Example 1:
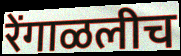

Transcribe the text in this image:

रेंगाळलीच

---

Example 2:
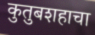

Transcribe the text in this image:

कुतुबशहाचा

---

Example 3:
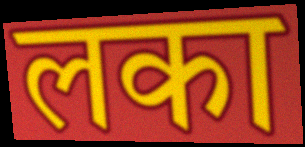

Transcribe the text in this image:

लका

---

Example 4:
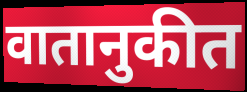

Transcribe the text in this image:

वातानुकीत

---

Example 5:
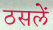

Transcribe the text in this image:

ठसलें